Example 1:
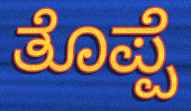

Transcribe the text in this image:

ತೊಪ್ಪೆ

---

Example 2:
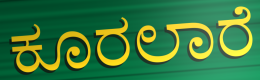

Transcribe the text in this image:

ಕೂರಲಾರೆ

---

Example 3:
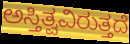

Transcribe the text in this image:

ಅಸ್ತಿತ್ವವಿರುತ್ತದೆ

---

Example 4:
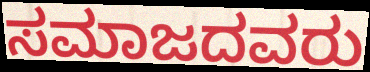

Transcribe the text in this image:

ಸಮಾಜದವರು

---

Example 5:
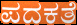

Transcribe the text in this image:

ಪದಕತೆ